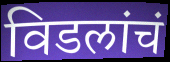
विडलांचं